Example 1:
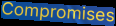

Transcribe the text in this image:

Compromises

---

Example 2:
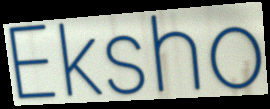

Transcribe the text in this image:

Eksho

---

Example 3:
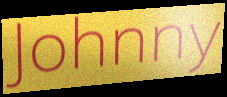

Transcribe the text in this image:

Johnny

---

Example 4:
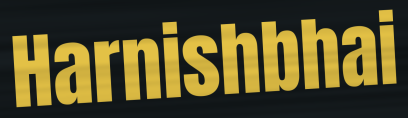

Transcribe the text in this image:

Harnishbhai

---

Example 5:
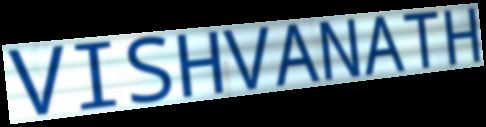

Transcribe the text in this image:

VISHVANATH